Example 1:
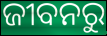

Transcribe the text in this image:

ଜୀବନରୁ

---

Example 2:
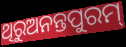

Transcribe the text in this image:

ଥିରୁଅନନ୍ତପୁରମ୍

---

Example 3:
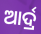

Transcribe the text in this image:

ଆର୍ଦ୍ର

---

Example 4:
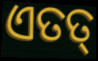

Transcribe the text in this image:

ଏତତ୍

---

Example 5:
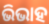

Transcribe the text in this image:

ଭିଭାହ